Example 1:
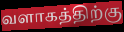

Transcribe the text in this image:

வளாகத்திற்கு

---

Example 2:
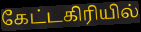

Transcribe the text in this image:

கேட்டகிரியில்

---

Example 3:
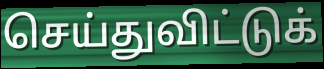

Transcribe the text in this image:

செய்துவிட்டுக்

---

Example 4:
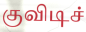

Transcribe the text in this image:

குவிடிச்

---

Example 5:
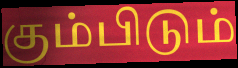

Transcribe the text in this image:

கும்பிடும்